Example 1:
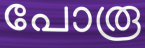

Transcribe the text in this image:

പോരൂ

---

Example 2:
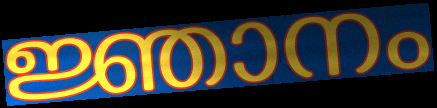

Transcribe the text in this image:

ജ്ഞാനം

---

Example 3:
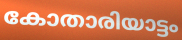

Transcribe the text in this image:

കോതാരിയാട്ടം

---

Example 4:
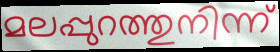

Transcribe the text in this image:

മലപ്പുറത്തുനിന്ന്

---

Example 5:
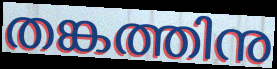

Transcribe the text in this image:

തങ്കത്തിനു